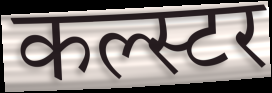
कल्स्टर